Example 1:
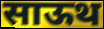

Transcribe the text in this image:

साऊथ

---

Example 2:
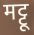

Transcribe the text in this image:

मट्टू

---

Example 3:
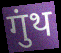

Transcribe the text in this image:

गुंथ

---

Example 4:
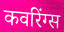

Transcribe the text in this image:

कवरिंग्स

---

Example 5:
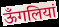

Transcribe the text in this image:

ऊँगलियां